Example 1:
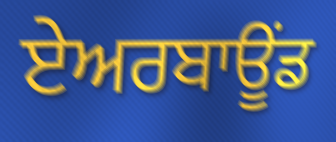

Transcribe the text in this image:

ਏਅਰਬਾਊਂਡ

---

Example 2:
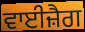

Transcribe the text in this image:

ਵਾਈਜ਼ੈਗ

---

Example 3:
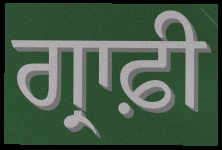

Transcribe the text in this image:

ਗ੍ਰਾਫ਼ੀ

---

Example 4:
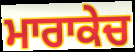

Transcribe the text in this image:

ਮਾਰਾਕੇਚ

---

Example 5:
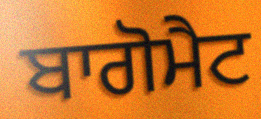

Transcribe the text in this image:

ਬਾਗੋਮੈਟ